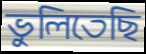
ভুলিতেছি